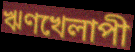
ঋণখেলাপী